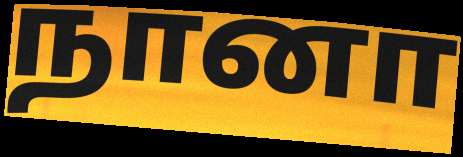
நானா